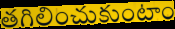
తగిలించుకుంటాం